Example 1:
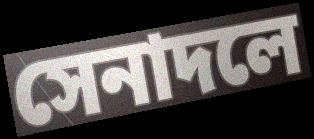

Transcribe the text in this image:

সেনাদলে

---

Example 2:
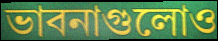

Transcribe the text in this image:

ভাবনাগুলোও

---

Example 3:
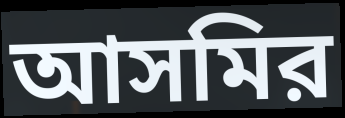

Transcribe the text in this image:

আসমির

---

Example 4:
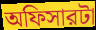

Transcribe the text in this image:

অফিসারটা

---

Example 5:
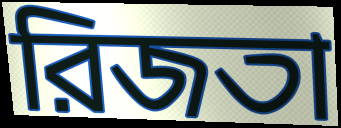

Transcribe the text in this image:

রিজতা